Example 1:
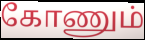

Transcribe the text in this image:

கோணும்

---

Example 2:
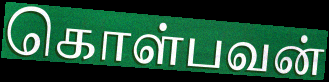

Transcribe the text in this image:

கொள்பவன்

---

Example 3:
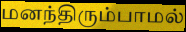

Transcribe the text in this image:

மனந்திரும்பாமல்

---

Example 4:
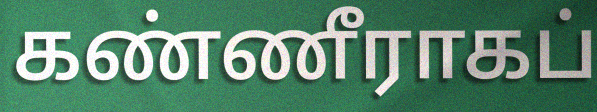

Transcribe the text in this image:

கண்ணீராகப்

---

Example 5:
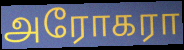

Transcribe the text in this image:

அரோகரா